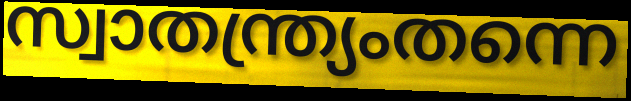
സ്വാതന്ത്ര്യംതന്നെ